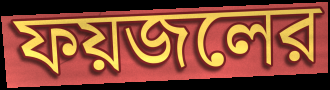
ফয়জলের